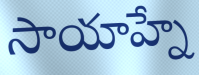
సాయాహ్నే